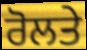
ਰੋਲਤੇ